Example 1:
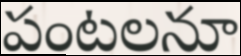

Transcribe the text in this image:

పంటలనూ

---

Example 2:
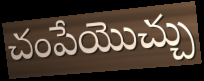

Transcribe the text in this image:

చంపేయొచ్చు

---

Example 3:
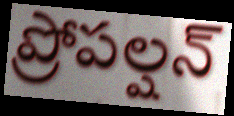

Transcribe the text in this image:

ప్రోపల్షన్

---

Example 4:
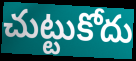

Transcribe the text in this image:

చుట్టుకోదు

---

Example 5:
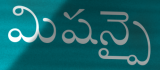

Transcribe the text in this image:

మిషన్పై